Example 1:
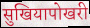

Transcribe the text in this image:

सुखियापोखरी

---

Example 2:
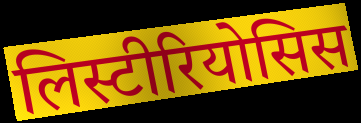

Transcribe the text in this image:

लिस्टीरियोसिस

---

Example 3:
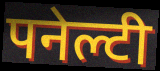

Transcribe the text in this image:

पनेल्टी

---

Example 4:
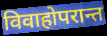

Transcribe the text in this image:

विवाहोपरान्त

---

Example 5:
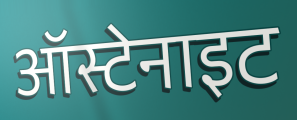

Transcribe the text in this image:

ऑस्टेनाइट